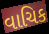
વાચિક